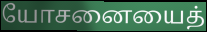
யோசனையைத்